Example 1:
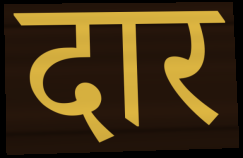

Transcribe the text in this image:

दार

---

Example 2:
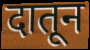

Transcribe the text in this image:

दातून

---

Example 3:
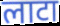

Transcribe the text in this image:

लाटा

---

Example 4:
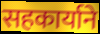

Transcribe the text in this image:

सहकार्याने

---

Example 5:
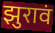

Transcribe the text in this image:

झुरावं